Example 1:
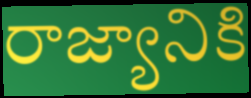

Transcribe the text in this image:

రాజ్యానికి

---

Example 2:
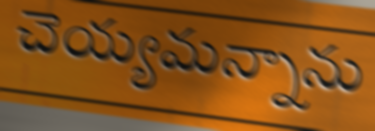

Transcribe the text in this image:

చెయ్యమన్నాను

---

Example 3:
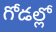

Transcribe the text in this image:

గోడల్లో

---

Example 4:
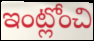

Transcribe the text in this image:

ఇంట్లోంచి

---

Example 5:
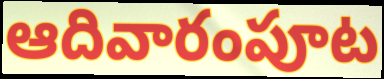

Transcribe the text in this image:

ఆదివారంపూట